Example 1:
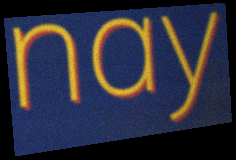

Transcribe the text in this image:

nay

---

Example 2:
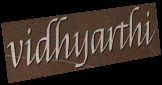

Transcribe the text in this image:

vidhyarthi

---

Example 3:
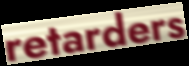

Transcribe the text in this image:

retarders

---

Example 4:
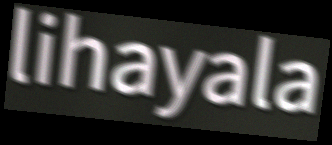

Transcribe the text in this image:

lihayala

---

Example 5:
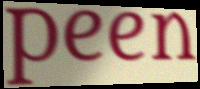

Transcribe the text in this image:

peen